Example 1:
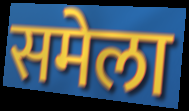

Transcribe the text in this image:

समेला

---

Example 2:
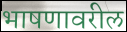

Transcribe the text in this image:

भाषणावरील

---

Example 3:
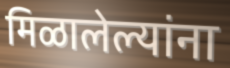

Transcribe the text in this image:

मिळालेल्यांना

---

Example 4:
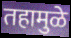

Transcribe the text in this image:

तहामुळे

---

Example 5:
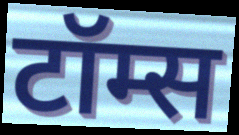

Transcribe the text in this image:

टॉम्स